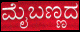
ಮೈಬಣ್ಣದ